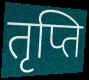
तृप्ति